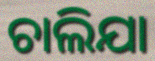
ଚାଲିଯା